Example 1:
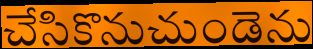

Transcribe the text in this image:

చేసికొనుచుండెను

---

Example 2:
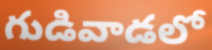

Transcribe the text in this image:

గుడివాడలో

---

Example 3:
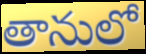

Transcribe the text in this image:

తానులో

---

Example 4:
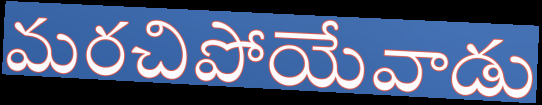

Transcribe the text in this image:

మరచిపోయేవాడు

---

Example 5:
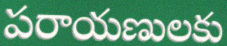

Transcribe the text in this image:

పరాయణులకు